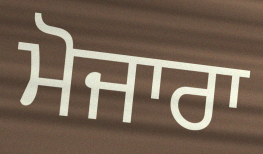
ਮੋਜਾਰਾ